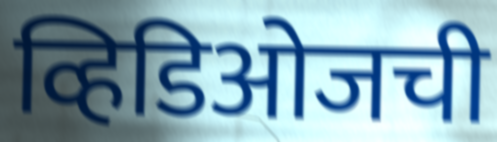
व्हिडिओजची